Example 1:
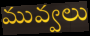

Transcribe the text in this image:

మువ్వలు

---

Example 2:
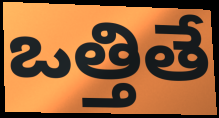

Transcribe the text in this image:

ఒత్తితే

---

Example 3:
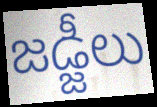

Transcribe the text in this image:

జడ్జీలు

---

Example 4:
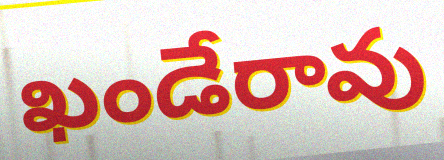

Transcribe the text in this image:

ఖండేరావు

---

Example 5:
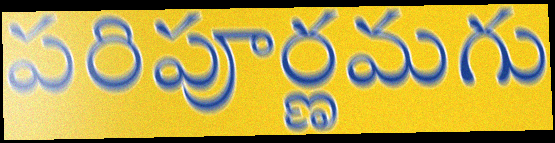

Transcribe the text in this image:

పరిపూర్ణమగు